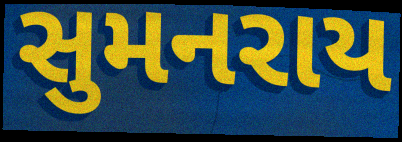
સુમનરાય